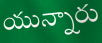
యున్నారు